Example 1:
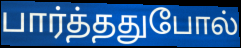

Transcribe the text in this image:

பார்த்ததுபோல்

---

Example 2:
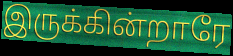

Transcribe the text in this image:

இருக்கின்றாரே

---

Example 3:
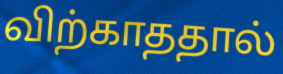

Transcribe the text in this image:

விற்காததால்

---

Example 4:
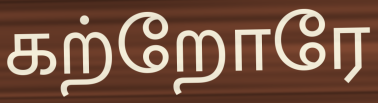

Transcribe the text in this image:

கற்றோரே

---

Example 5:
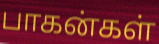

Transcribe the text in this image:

பாகன்கள்